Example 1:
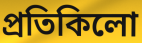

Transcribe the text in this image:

প্ৰতিকিলো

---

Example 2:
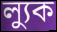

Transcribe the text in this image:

ল্যুক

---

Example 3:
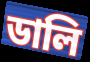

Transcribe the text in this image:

ডালি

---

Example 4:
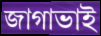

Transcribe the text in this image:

জাগাভাই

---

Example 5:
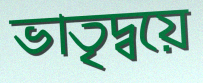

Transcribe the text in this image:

ভাতৃদ্বয়ে